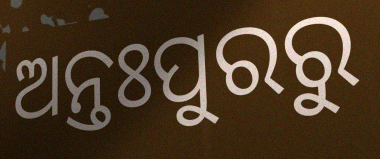
ଅନ୍ତଃପୁରରୁ